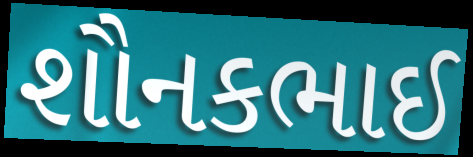
શૌનકભાઈ